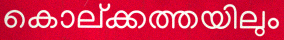
കൊല്ക്കത്തയിലും